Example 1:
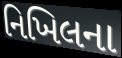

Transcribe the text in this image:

નિખિલના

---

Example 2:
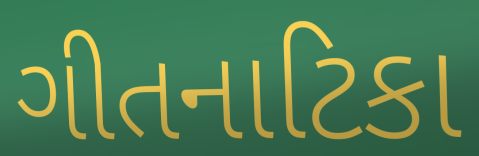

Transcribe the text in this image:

ગીતનાટિકા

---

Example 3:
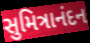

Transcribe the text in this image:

સુમિત્રાનંદન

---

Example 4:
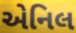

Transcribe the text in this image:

એનિલ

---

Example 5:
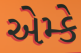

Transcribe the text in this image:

એમ્કે